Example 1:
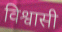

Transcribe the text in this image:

विश्वासी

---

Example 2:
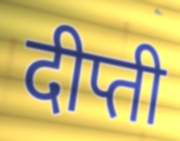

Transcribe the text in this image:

दीप्ती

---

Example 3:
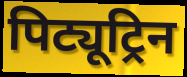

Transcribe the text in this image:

पिट्यूट्रिन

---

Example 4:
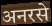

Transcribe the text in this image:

अनरसे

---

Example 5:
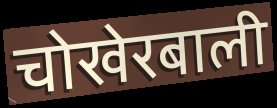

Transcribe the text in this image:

चोखेरबाली